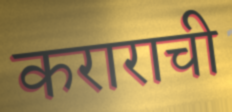
कराराची